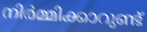
നിർമ്മിക്കാറുണ്ട്